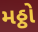
મઠ્ઠો